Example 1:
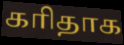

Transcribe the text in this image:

கரிதாக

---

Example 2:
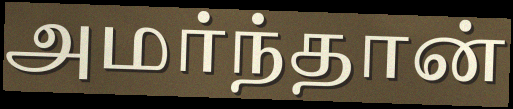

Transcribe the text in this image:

அமர்ந்தான்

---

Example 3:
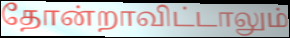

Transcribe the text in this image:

தோன்றாவிட்டாலும்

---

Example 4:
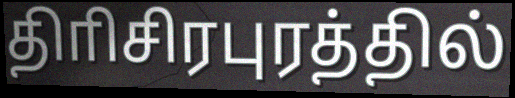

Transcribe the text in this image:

திரிசிரபுரத்தில்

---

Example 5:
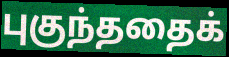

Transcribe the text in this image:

புகுந்ததைக்